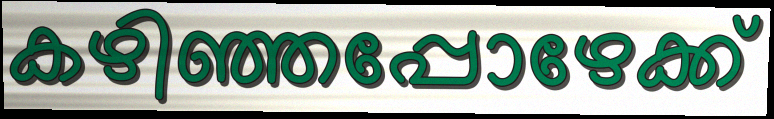
കഴിഞ്ഞപ്പോഴേക്ക്